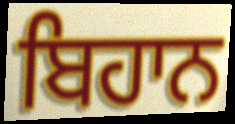
ਬਿਹਾਨ